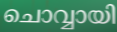
ചൊവ്വായി